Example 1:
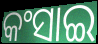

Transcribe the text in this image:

କଂସାଇ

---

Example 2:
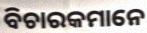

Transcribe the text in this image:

ବିଚାରକମାନେ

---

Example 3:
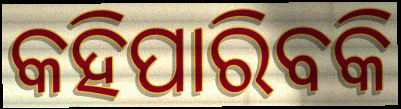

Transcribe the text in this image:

କହିପାରିବକି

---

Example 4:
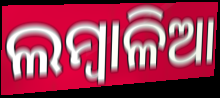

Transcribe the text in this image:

ଲମ୍ବାଳିଆ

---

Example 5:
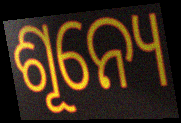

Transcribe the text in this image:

ଶୂନ୍ୟେ